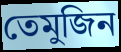
তেমুজিন